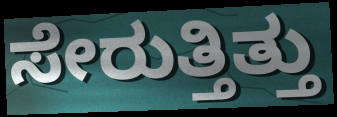
ಸೇರುತ್ತಿತ್ತು